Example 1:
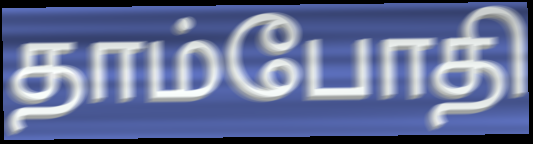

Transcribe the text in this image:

தாம்போதி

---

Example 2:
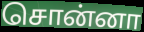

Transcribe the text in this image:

சொன்னா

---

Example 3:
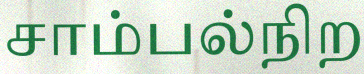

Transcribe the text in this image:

சாம்பல்நிற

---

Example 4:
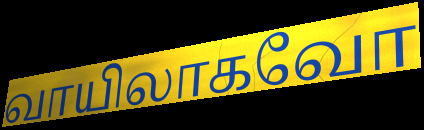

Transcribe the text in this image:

வாயிலாகவோ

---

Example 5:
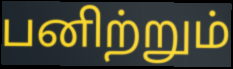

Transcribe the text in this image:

பனிற்றும்